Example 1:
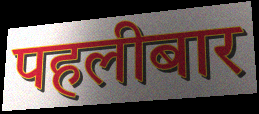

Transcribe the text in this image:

पहलीबार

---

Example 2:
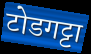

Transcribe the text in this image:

टोडगट्टा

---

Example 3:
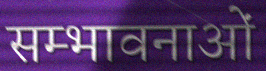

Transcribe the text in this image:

सम्भावनाओं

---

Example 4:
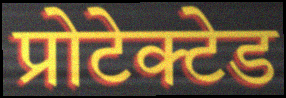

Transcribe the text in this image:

प्रोटेक्टेड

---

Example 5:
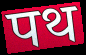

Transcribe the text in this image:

पथ